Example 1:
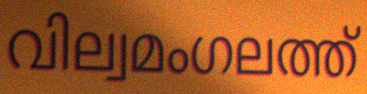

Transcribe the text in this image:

വില്വമംഗലത്ത്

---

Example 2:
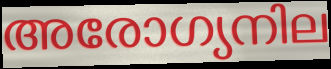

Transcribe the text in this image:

അരോഗ്യനില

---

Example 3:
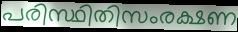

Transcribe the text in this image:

പരിസ്ഥിതിസംരക്ഷണ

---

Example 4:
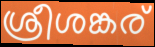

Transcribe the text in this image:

ശ്രീശങ്കര്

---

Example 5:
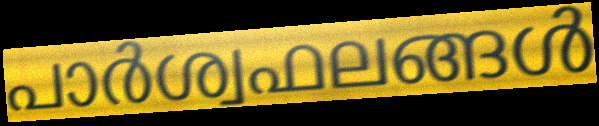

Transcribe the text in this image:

പാർശ്വഫലങ്ങൾ